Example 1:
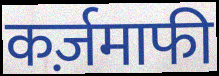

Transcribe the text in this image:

कर्ज़माफी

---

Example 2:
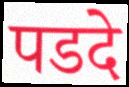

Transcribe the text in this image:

पडदे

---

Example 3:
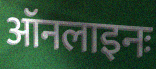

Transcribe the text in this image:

ऑनलाइनः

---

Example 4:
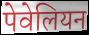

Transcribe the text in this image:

पेवेलियन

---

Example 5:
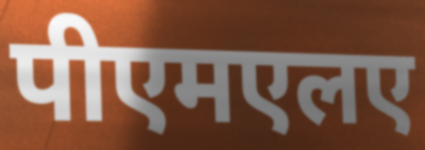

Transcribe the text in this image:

पीएमएलए